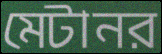
মেটানর